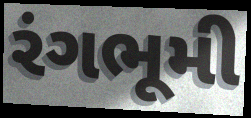
રંગભૂમી